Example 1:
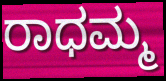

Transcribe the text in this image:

ರಾಧಮ್ಮ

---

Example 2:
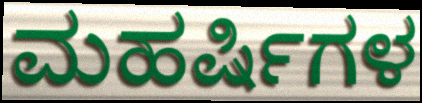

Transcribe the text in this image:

ಮಹರ್ಷಿಗಳ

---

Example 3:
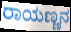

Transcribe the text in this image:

ರಾಯಣ್ಣನ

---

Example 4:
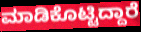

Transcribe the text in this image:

ಮಾಡಿಕೊಟ್ಟಿದ್ದಾರೆ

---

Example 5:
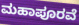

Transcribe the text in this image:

ಮಹಾಪೂರವೆ